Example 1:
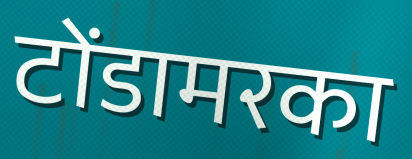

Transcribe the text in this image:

टोंडामरका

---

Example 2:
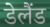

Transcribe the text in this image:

डेलैंड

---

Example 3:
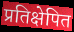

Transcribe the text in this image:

प्रतिक्षेपित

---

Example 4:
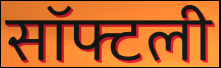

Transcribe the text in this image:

सॉफ्टली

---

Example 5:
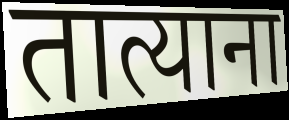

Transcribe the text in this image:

तात्याना